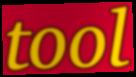
tool